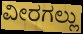
ವೀರಗಲ್ಲು